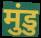
मुंडु